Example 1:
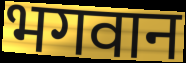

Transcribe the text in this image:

भगवान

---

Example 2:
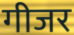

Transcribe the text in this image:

गीजर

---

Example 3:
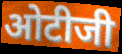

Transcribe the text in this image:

ओटीजी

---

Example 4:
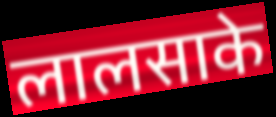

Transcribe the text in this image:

लालसाके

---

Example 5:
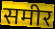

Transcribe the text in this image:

समीर